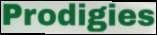
Prodigies